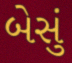
બેસું